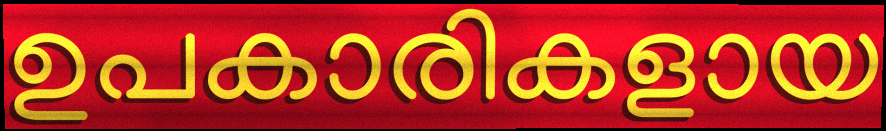
ഉപകാരികളായ